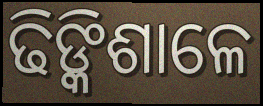
ଢିଙ୍କିଶାଳେ